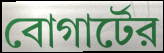
বোগার্টের